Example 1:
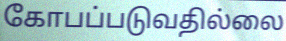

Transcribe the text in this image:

கோபப்படுவதில்லை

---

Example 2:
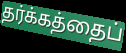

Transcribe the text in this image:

தர்க்கத்தைப்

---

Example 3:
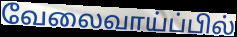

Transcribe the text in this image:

வேலைவாய்ப்பில்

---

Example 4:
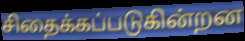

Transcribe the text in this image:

சிதைக்கப்படுகின்றன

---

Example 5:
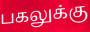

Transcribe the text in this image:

பகலுக்கு